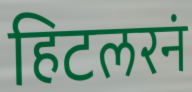
हिटलरनं